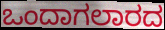
ಒಂದಾಗಲಾರದ